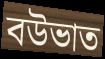
বউভাত